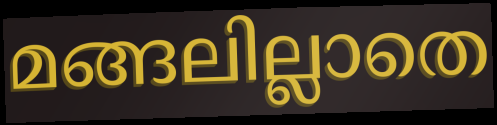
മങ്ങലില്ലാതെ